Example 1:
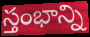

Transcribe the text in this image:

స్తంభాన్ని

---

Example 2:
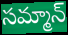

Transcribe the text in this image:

సమ్మాన్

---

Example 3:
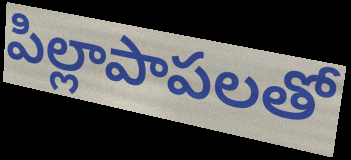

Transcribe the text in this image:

పిల్లాపాపలతో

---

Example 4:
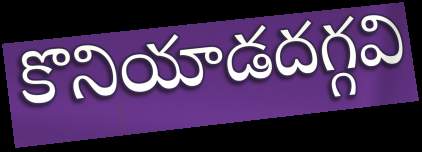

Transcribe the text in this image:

కొనియాడదగ్గవి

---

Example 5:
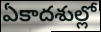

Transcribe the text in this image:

ఏకాదశుల్లో